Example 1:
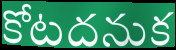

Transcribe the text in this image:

కోటదనుక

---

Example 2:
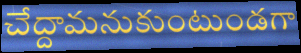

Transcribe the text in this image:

చేద్దామనుకుంటుండగా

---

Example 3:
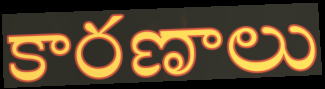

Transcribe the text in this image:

కారణాలు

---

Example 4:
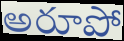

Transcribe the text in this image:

అరూపో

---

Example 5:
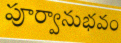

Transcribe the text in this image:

పూర్వానుభవం